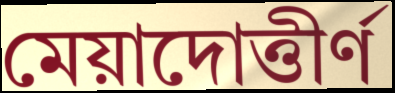
মেয়াদোত্তীর্ণ